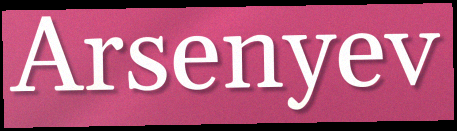
Arsenyev